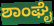
ಶಾಂಘೈ